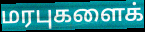
மரபுகளைக்